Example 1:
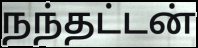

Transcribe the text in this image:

நந்தட்டன்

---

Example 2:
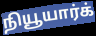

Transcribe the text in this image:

நியூயார்க்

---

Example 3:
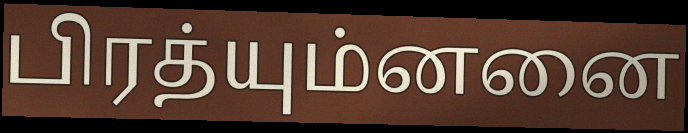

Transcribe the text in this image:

பிரத்யும்னனை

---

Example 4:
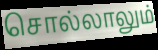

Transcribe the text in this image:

சொல்லாலும்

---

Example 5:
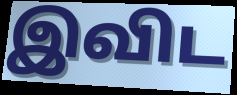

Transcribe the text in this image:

இவிட